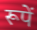
रूपें